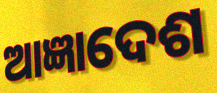
ଆଜ୍ଞାଦେଶ